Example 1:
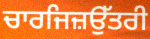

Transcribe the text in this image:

ਚਾਰਜਿਜ਼ਉੱਤਰੀ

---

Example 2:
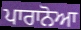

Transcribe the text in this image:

ਪਾਰਾਨੋਆ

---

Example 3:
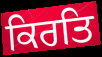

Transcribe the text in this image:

ਕਿਰਤਿ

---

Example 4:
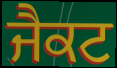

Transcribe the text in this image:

ਜੈਕਟ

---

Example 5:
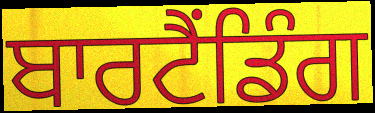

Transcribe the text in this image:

ਬਾਰਟੈਂਡਿੰਗ